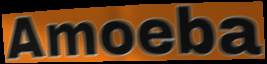
Amoeba